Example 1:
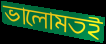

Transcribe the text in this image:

ভালোমতই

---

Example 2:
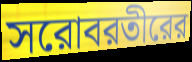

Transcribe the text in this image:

সরোবরতীরের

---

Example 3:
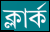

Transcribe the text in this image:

ক্লার্ক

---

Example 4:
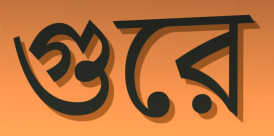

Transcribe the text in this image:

গুরে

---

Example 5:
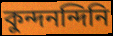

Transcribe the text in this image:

কুন্দনন্দিনি